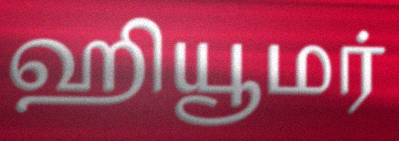
ஹியூமர்